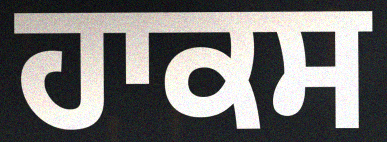
ਹਾਕਸ